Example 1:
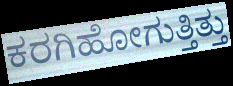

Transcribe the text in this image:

ಕರಗಿಹೋಗುತ್ತಿತ್ತು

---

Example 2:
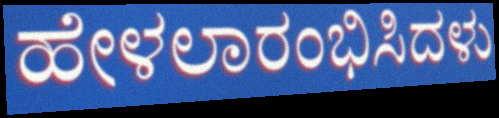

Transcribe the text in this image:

ಹೇಳಲಾರಂಭಿಸಿದಳು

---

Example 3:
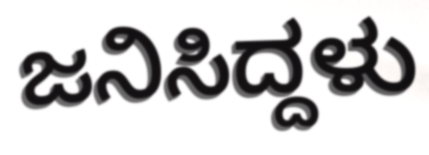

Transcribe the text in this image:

ಜನಿಸಿದ್ದಳು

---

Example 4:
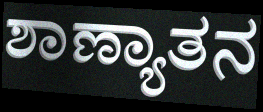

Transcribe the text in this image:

ಶಾಣ್ಯಾತನ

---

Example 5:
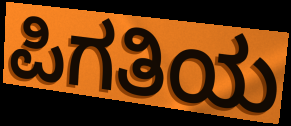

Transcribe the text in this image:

ಪಿಗತಿಯ